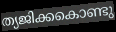
ത്യജിക്കകൊണ്ടു